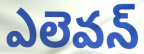
ఎలెవన్